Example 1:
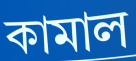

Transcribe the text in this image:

কামাল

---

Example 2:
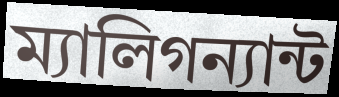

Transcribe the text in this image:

ম্যালিগন্যান্ট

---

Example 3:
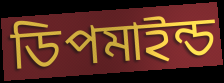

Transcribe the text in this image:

ডিপমাইন্ড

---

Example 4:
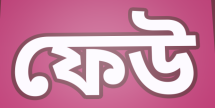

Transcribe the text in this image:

ফেউ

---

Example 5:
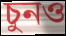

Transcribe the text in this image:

চুনও